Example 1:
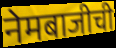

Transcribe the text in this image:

नेमबाजीची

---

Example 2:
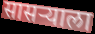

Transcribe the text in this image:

सासऱ्याला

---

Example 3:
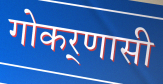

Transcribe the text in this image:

गोकर्णासी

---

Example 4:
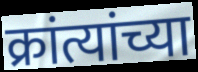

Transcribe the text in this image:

क्रांत्यांच्या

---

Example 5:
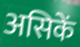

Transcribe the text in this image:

असिकें